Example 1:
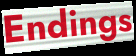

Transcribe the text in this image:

Endings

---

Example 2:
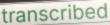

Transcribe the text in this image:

transcribed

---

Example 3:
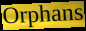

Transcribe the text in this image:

Orphans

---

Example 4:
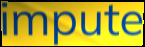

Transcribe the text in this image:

impute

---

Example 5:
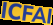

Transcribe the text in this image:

ICFAI